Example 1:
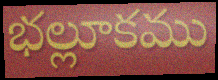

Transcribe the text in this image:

భల్లూకము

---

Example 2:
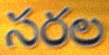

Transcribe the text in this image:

సరల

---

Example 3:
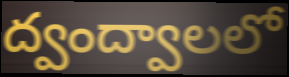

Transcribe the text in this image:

ద్వంద్వాలలో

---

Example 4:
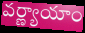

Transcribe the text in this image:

వర్ణ్యాయాం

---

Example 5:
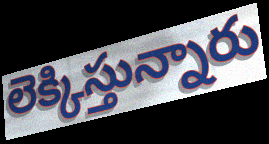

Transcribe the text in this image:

లెక్కిస్తున్నారు